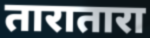
तारातारा